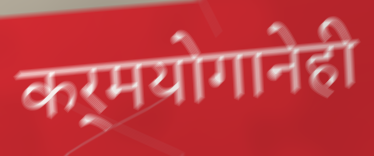
कर्मयोगानेही